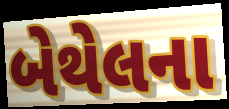
બેથેલના